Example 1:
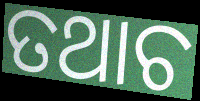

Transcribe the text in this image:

ତଥାଚ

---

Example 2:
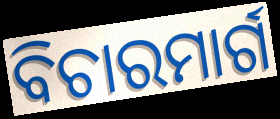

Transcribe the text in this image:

ବିଚାରମାର୍ଗ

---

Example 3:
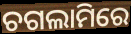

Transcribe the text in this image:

ଚଗଲାମିରେ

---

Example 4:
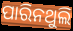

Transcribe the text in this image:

ପାରିନଥୁଲି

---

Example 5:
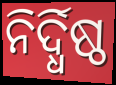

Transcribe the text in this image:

ନିର୍ଦ୍ଧିଷ୍ଠ